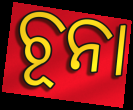
ଚୂନା